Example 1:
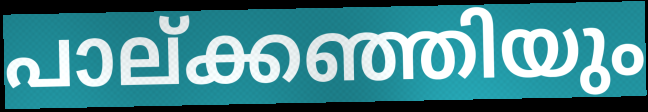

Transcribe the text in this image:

പാല്ക്കഞ്ഞിയും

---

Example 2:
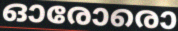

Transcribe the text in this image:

ഓരോരൊ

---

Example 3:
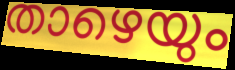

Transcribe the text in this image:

താഴെയും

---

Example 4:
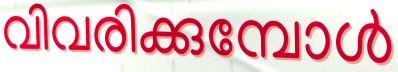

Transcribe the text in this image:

വിവരിക്കുമ്പോൾ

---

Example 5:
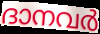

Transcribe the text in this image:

ദാനവർ